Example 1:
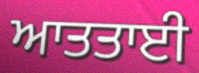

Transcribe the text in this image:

ਆਤਤਾਈ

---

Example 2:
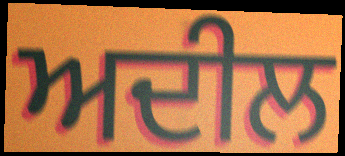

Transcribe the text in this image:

ਅਦੀਲ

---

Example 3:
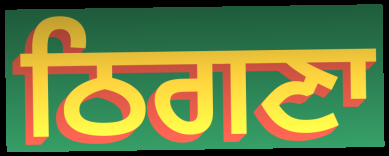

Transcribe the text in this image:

ਠਿਗਣਾ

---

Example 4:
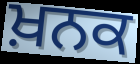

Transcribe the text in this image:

ਖ਼ਨਕ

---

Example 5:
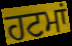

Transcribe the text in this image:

ਹਟਮਾਂ